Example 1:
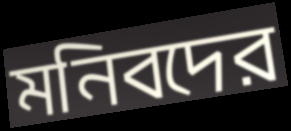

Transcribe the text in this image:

মনিবদের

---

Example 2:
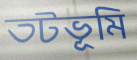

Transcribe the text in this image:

তটভূমি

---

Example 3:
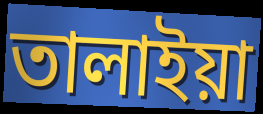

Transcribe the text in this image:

তালাইয়া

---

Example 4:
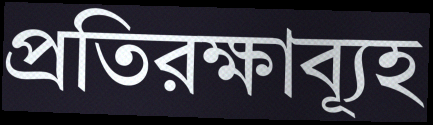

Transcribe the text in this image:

প্রতিরক্ষাব্যূহ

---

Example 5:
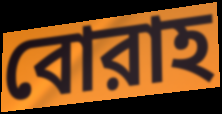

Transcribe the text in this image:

বোরাহ